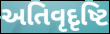
અતિવૃદૃષ્ટિ